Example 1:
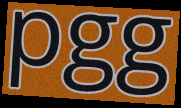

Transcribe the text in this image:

pgg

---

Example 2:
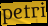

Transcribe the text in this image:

petri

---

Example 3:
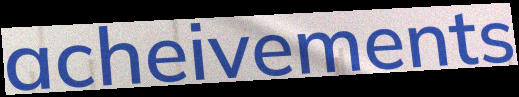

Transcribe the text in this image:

acheivements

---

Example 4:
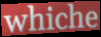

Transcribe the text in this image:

whiche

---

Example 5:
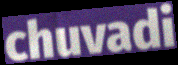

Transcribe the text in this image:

chuvadi